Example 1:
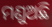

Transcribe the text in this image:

ମଣୁଅଛି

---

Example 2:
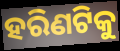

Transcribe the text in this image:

ହରିଣଟିକୁ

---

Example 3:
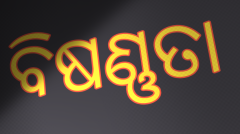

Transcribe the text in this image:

ବିଷଣ୍ଣତା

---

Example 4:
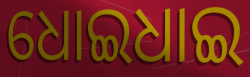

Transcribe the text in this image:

ଧୋଇଧାଇ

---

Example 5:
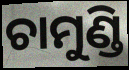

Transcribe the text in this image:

ଚାମୁଣ୍ଡି